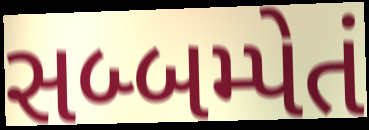
સબ્બમ્પેતં